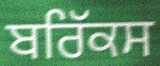
ਬਰਿੱਕਸ